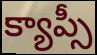
క్యాప్సీ